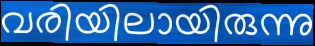
വരിയിലായിരുന്നു